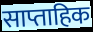
साप्ताहिक